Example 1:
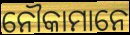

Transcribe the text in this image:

ନୌକାମାନେ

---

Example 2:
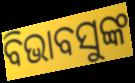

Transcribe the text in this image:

ବିଭାବସୁଙ୍କ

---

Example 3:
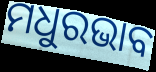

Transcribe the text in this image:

ମଧୁରଭାବ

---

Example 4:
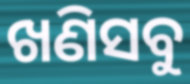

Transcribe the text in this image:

ଖଣିସବୁ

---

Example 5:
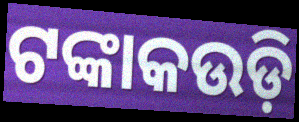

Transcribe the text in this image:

ଟଙ୍କାକଉଡ଼ି